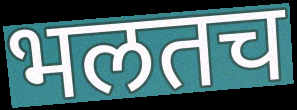
भलतच